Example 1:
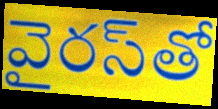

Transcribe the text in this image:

వైరస్‌తో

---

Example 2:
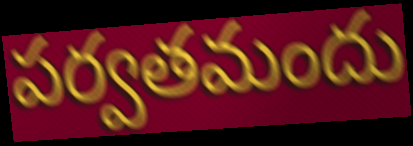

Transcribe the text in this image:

పర్వతమందు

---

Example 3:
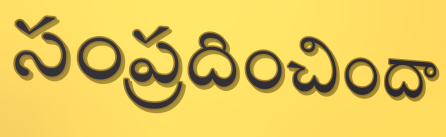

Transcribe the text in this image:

సంప్రదించిందా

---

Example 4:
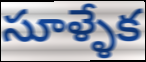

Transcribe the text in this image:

సూళ్ళేక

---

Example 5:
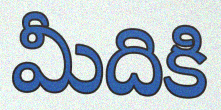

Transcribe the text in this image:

మీదికి